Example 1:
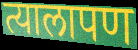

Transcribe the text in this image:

त्यालापण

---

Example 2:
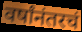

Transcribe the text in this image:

वर्षांनंतरचं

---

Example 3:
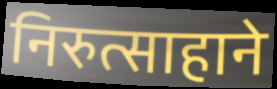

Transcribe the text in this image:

निरुत्साहाने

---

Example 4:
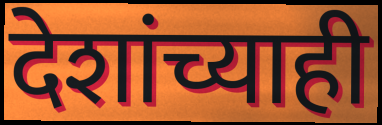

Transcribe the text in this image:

देशांच्याही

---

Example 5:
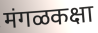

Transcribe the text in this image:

मंगळकक्षा